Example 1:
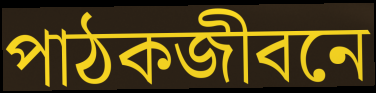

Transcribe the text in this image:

পাঠকজীবনে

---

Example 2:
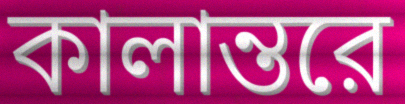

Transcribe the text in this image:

কালান্তরে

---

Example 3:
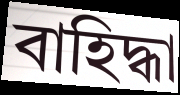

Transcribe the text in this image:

বাহিদ্ধা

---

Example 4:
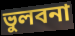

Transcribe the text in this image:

ভুলবনা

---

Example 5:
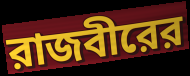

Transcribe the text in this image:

রাজবীরের